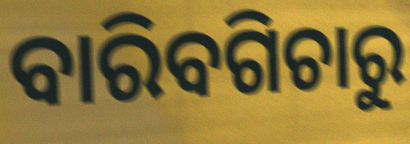
ବାରିବଗିଚାରୁ